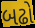
બઢો